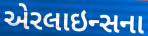
એરલાઇન્સના